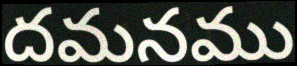
దమనము